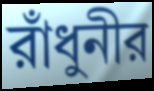
রাঁধুনীর